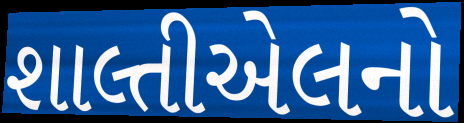
શાલ્તીએલનો